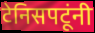
टेनिसपटूंनी